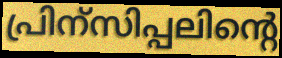
പ്രിന്സിപ്പലിന്റെ